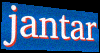
jantar